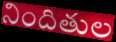
నిందితుల